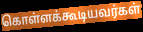
கொள்ளக்கூடியவர்கள்